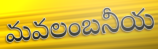
మవలంబనీయ